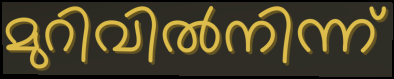
മുറിവിൽനിന്ന്